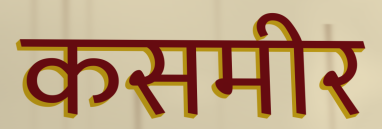
कसमीर